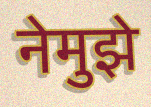
नेमुझे